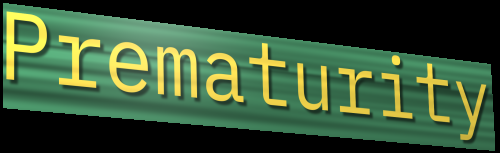
Prematurity